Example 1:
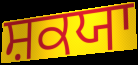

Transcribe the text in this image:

ਸ਼ਕਯਾ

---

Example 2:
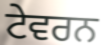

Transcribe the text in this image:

ਟੇਵਰਨ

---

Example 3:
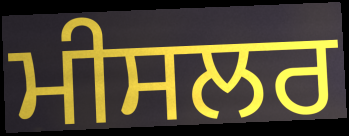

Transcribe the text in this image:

ਮੀਸਲਰ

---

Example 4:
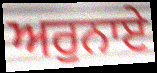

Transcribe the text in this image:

ਅਰੁਨਾਏ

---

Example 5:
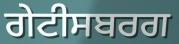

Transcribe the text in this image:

ਗੇਟੀਸਬਰਗ